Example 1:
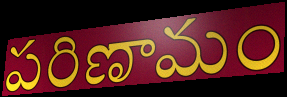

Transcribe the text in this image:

పరిణామం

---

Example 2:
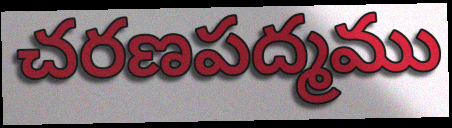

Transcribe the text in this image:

చరణపద్మము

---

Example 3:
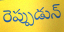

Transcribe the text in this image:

రెప్పుడున్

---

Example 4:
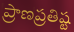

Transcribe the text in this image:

ప్రాణప్రతిష్ట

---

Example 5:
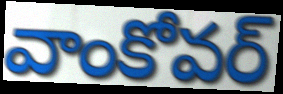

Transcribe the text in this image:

వాంకోవర్